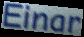
Einar